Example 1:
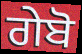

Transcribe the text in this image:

ਗੇਬੋ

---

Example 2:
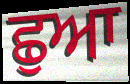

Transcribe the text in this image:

ਛੁਆ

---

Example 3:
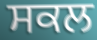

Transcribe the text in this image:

ਸਕਲ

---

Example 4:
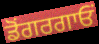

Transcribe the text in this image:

ਡੋਂਗਰਗਾਓਂ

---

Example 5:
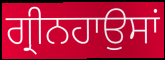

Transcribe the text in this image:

ਗ੍ਰੀਨਹਾਉਸਾਂ